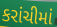
કરાંચીમાં